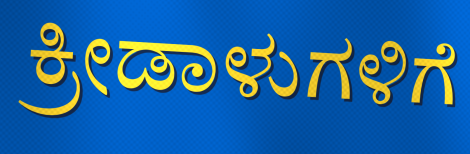
ಕ್ರೀಡಾಳುಗಳಿಗೆ